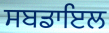
ਸਬਡਾਇਲ